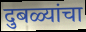
दुबळ्यांचा